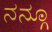
ನನ್ಗೂ